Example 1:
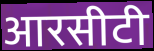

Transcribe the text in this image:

आरसीटी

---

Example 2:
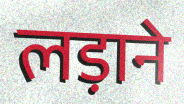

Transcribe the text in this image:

लड़ाने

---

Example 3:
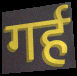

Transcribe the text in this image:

गर्ह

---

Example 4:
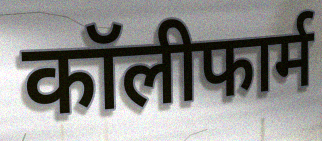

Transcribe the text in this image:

कॉलीफार्म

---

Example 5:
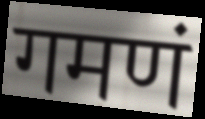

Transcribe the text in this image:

गमणं